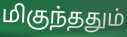
மிகுந்ததும்